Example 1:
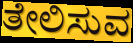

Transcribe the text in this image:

ತೇಲಿಸುವ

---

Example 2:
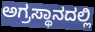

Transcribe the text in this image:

ಅಗ್ರಸ್ಥಾನದಲ್ಲಿ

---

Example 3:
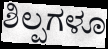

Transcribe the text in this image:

ಶಿಲ್ಪಗಳೂ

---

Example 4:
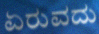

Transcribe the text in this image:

ಏರುವದು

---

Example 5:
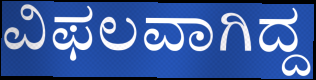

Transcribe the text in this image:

ವಿಫಲವಾಗಿದ್ದ